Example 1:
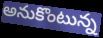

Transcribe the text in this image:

అనుకొంటున్న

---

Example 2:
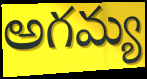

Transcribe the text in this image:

అగమ్య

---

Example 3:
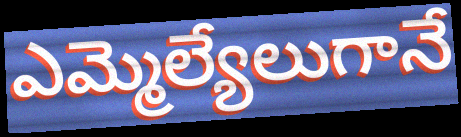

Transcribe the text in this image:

ఎమ్మెల్యేలుగానే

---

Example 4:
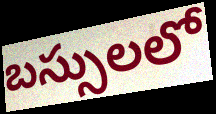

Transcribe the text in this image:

బస్సులలో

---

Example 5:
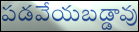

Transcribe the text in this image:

పడవేయబడ్డావు